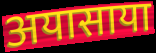
अयासाया